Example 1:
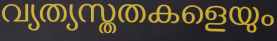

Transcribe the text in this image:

വ്യത്യസ്തതകളെയും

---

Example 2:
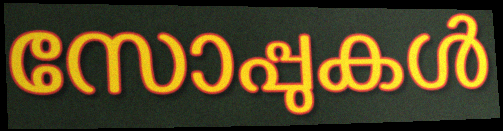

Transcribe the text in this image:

സോപ്പുകൾ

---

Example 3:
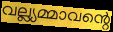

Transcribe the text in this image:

വല്ല്യമ്മാവന്റെ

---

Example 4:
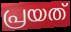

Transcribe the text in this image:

പ്രയത്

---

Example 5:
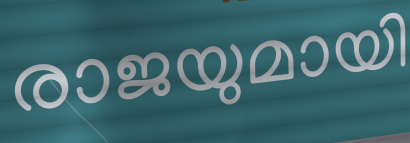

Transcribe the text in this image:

രാജയുമായി